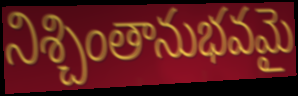
నిశ్చింతానుభవమై